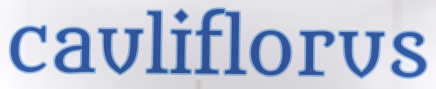
cauliflorus